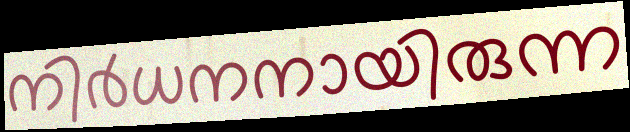
നിർധനനായിരുന്ന